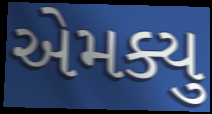
એમક્યુ